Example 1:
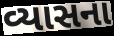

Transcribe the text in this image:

વ્યાસના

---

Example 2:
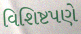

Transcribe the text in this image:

વિશિષ્ટપણે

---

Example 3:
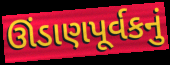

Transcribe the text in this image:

ઊંડાણપૂર્વકનું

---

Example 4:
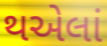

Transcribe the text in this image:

થએલાં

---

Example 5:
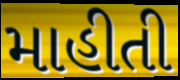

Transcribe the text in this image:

માહીતી